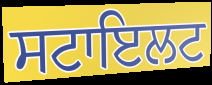
ਸਟਾਇਲਟ